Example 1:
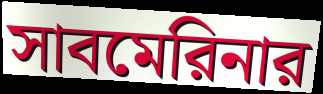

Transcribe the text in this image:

সাবমেরিনার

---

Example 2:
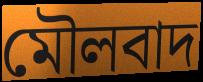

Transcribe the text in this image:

মৌলবাদ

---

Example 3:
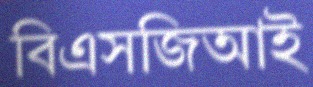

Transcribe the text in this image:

বিএসজিআই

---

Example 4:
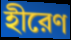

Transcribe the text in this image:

হীরেণ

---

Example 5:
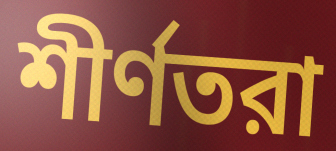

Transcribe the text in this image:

শীর্ণতরা